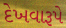
દેખવારૂપે